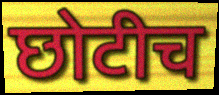
छोटीच